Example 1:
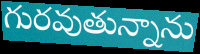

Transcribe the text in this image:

గురవుతున్నాను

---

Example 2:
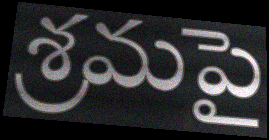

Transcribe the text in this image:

శ్రమపై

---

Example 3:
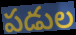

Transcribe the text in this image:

పడుల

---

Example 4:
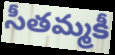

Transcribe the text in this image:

సీతమ్మకీ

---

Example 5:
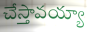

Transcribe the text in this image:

చేస్తావయ్యా